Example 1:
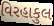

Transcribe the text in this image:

વિરહાકુલ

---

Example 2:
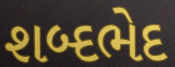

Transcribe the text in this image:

શબ્દભેદ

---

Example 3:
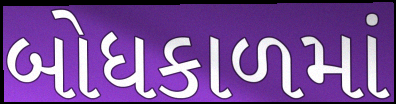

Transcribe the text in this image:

બોધકાળમાં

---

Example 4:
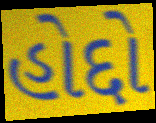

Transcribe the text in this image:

હોદ્દો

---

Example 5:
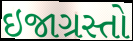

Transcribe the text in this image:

ઇજાગ્રસ્તો